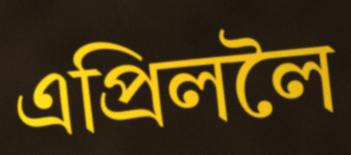
এপ্ৰিললৈ